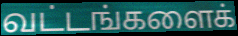
வட்டங்களைக்